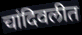
चांदिवलीत